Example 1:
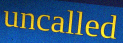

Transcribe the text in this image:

uncalled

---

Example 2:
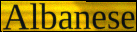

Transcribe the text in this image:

Albanese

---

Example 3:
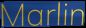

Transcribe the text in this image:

Marlin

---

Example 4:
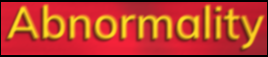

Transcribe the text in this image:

Abnormality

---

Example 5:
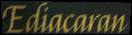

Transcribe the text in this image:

Ediacaran